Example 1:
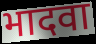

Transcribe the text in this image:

भादवा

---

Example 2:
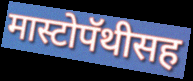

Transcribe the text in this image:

मास्टोपॅथीसह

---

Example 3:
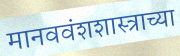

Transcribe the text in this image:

मानववंशशास्त्राच्या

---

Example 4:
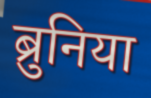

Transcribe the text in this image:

ब्रुनिया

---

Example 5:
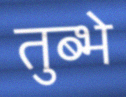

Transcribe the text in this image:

तुब्भे